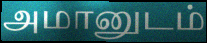
அமானுடம்